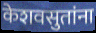
केशवसुतांना